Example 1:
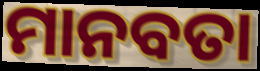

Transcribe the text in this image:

ମାନବତା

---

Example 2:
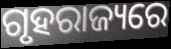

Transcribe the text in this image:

ଗୃହରାଜ୍ୟରେ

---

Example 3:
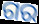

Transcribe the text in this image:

ଗର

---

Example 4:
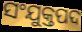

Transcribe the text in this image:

ସଂଯୁକ୍ତପଦ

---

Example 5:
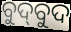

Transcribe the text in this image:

ବୁଦ୍‌ବୁଦ